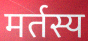
मर्तस्य